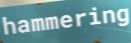
hammering